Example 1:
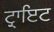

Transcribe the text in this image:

ਟ੍ਰਾਇਟ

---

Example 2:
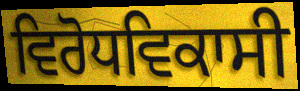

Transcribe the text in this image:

ਵਿਰੋਧਵਿਕਾਸੀ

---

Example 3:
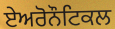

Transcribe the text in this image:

ਏਅਰੋਨੌਟਿਕਲ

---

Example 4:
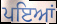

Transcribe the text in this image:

ਪਇਆਂ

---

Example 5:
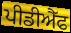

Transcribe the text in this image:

ਪੀਡੀਐੱਫ